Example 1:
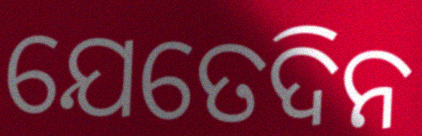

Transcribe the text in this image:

ଯେତେଦିନ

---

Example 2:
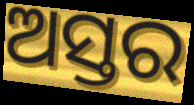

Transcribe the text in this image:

ଅସ୍ତର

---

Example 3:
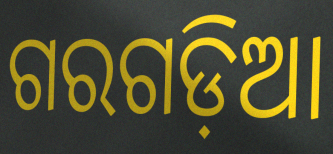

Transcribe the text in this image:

ଗରଗଡ଼ିଆ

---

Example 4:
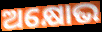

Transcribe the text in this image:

ଅକ୍ଷୋଭ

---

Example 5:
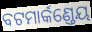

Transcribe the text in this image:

ବଟମାର୍କଣ୍ଡେୟ